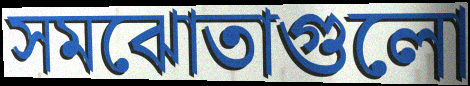
সমঝোতাগুলো